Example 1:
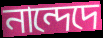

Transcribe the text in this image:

নান্দেদে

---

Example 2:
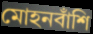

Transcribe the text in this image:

মোহনবাঁশি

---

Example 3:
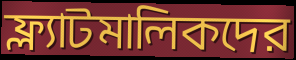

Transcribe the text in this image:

ফ্ল্যাটমালিকদের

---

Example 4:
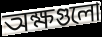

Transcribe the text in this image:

অক্ষগুলো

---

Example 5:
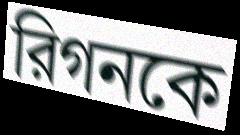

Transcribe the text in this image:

রিগনকে